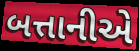
બત્તાનીએ